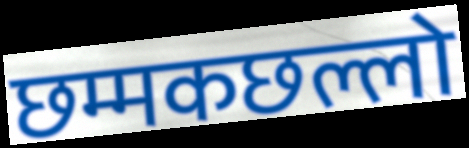
छम्मकछल्लो